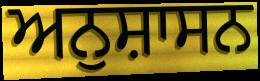
ਅਨੁਸ਼ਾਸਨ